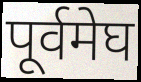
पूर्वमेघ